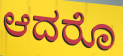
ಆದರೊ